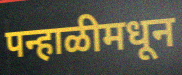
पन्हाळीमधून